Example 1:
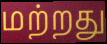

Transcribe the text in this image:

மற்றது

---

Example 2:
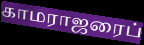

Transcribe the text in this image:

காமராஜரைப்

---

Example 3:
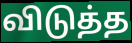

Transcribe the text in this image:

விடுத்த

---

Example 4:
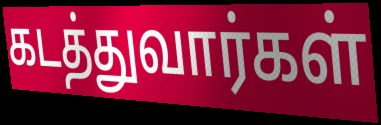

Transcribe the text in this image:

கடத்துவார்கள்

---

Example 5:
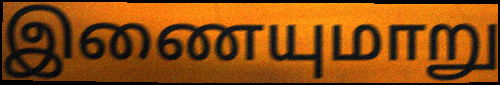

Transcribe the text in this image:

இணையுமாறு